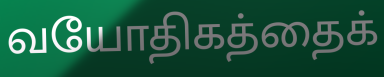
வயோதிகத்தைக்